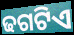
ଢଗଟିଏ